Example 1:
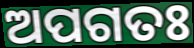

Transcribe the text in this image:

ଅପଗତଃ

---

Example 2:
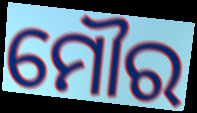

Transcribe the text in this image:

ମୌର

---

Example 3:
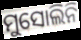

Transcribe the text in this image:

ମୁସୋଲିନି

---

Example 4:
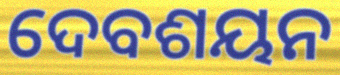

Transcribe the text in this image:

ଦେବଶୟନ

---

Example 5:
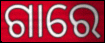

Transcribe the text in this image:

ଗାରେ